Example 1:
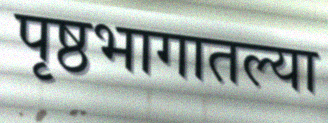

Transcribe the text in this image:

पृष्ठभागातल्या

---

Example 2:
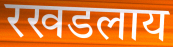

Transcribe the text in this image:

रखडलाय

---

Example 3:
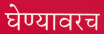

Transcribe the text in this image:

घेण्यावरच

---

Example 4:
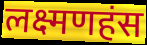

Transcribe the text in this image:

लक्ष्मणहंस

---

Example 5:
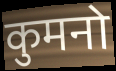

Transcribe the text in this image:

कुमनो